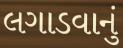
લગાડવાનું